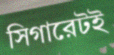
সিগারেটই